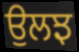
ਉਲਝ